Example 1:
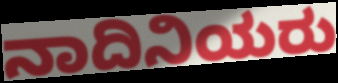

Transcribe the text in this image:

ನಾದಿನಿಯರು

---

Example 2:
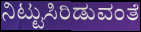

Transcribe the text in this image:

ನಿಟ್ಟುಸಿರಿಡುವಂತೆ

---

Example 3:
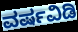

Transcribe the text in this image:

ವರ್ಷವಿಡಿ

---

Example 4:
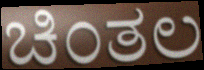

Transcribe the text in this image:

ಚಿಂತಲ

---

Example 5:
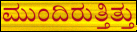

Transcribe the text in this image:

ಮುಂದಿರುತ್ತಿತ್ತು